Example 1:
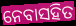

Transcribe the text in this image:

ନେବାସହିତ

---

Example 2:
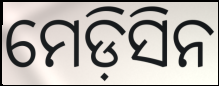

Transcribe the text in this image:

ମେଡ଼ିସିନ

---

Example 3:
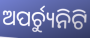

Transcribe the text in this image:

ଅପର୍ଚ୍ୟୁନିଟି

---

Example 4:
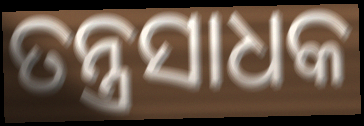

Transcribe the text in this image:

ତନ୍ତ୍ରସାଧକ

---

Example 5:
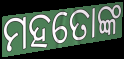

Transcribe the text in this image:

ମହତୋଙ୍କ